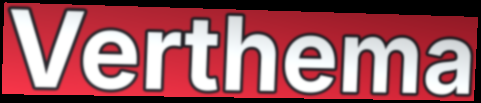
Verthema